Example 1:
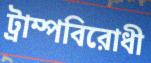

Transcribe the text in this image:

ট্রাম্পবিরোধী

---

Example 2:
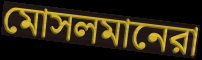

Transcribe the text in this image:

মোসলমানেরা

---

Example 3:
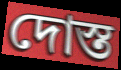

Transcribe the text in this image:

দোস্ত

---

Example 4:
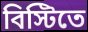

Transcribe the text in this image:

বিস্টিতে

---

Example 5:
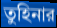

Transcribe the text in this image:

তুহিনার